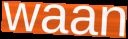
waan